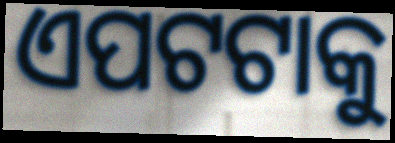
ଏପଟଟାକୁ